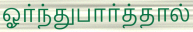
ஓர்ந்துபார்த்தால்